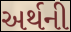
અર્થની